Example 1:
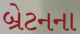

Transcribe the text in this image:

બ્રેટનના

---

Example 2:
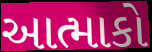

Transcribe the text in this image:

આત્માકો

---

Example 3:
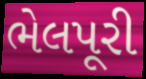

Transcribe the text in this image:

ભેલપૂરી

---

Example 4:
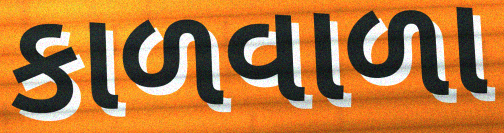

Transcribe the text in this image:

કાળવાળા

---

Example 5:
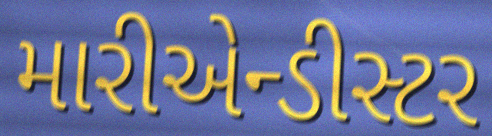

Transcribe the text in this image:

મારીએન્ડીસ્ટર